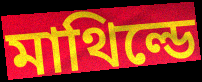
মাথিল্ডে